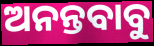
ଅନନ୍ତବାବୁ